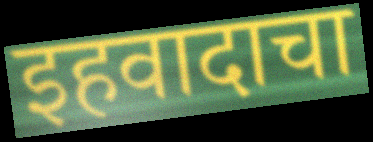
इहवादाचा